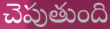
చెపుతుంది